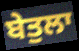
ਬੇਤੁਲਾ